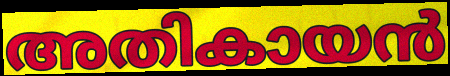
അതികായൻ